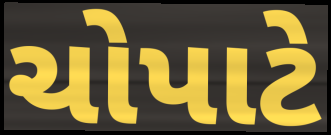
ચોપાટે